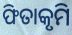
ଫିତାକୃମି